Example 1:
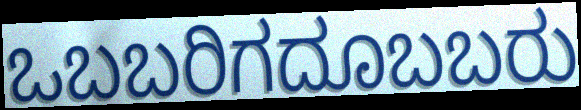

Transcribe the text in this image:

ಒಬಬರಿಗದೂಬಬರು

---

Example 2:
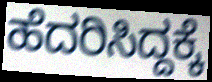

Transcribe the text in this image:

ಹೆದರಿಸಿದ್ದಕ್ಕೆ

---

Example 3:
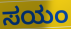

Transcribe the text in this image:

ಸಯಂ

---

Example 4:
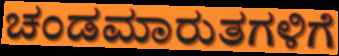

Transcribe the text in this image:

ಚಂಡಮಾರುತಗಳಿಗೆ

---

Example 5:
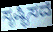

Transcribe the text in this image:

ಸೃಷ್ಟಿಸದೆ